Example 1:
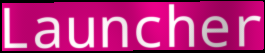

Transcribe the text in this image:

Launcher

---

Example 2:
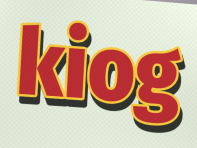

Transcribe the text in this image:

kiog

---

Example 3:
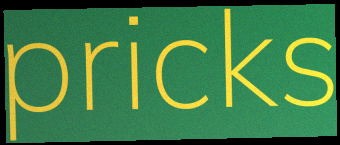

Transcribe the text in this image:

pricks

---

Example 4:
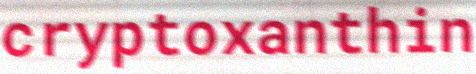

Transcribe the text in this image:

cryptoxanthin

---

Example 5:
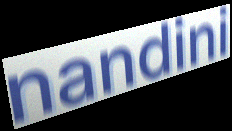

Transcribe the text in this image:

nandini